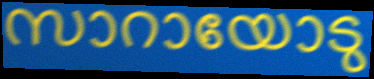
സാറായോടു